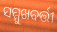
ସମ୍ମୁଖବର୍ତ୍ତୀ